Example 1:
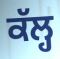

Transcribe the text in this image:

ਕੱਲ੍ਹ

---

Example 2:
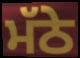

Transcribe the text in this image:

ਮੱਠੇ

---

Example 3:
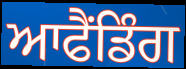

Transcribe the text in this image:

ਆਫੈਂਡਿੰਗ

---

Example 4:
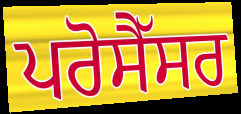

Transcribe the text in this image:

ਪਰੋਸੈੱਸਰ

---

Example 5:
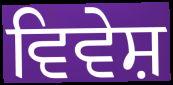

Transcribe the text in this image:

ਵਿਵੇਸ਼